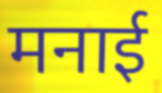
मनाई